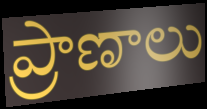
ప్రాణాలు